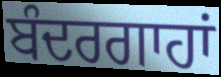
ਬੰਦਰਗਾਹਾਂ